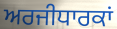
ਅਰਜੀਧਾਰਕਾਂ